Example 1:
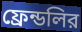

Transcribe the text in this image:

ফ্রেন্ডলির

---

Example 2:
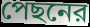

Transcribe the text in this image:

পেছনের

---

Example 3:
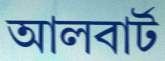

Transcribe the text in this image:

আলবার্ট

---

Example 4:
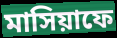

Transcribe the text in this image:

মাসিয়াফে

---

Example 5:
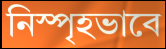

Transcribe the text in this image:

নিস্পৃহভাবে